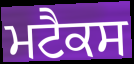
ਮਟੈਕਸ